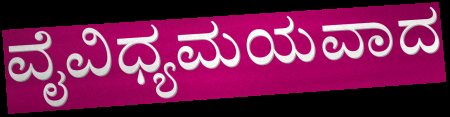
ವೈವಿಧ್ಯಮಯವಾದ